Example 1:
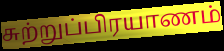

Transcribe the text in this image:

சுற்றுப்பிரயாணம்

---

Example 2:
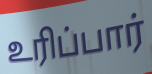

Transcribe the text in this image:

உரிப்பார்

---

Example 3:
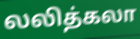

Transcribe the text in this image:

லலித்கலா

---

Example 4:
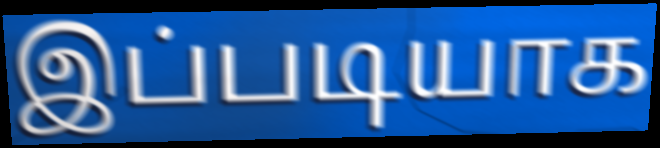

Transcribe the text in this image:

இப்படியாக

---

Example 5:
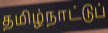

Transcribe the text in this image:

தமிழ்நாட்டுப்